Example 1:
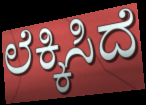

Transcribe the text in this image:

ಲೆಕ್ಕಿಸಿದೆ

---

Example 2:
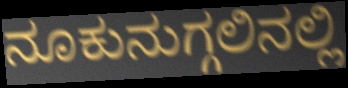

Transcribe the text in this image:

ನೂಕುನುಗ್ಗಲಿನಲ್ಲಿ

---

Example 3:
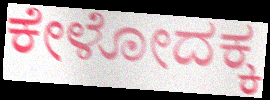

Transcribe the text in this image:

ಕೇಳೋದಕ್ಕ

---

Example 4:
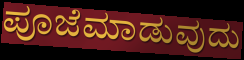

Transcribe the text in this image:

ಪೂಜೆಮಾಡುವುದು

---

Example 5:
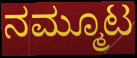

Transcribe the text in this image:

ನಮ್ಮೂಟ